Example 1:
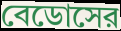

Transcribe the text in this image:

বেডোসের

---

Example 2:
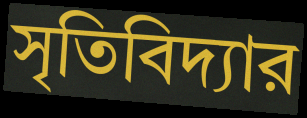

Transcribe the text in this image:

সৃতিবিদ্যার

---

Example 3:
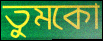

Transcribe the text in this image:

তুমকো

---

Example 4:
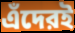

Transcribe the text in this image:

এঁদেরই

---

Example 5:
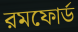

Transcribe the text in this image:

রমফোর্ড